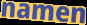
namen